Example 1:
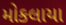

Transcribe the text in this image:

મોકલાયા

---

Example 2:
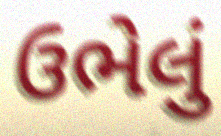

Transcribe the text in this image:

ઉભેલું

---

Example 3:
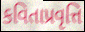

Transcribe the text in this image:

કવિતાપ્રવૃત્તિ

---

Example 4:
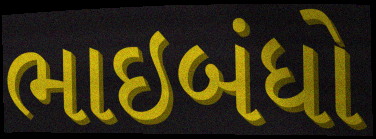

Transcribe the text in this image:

ભાઇબંધો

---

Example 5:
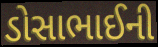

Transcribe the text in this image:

ડોસાભાઈની